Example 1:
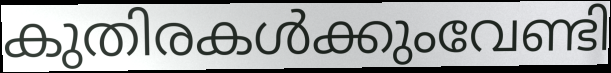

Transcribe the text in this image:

കുതിരകൾക്കുംവേണ്ടി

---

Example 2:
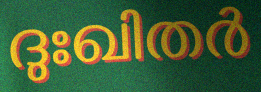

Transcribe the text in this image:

ദുഃഖിതർ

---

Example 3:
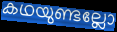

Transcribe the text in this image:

കഥയുണ്ടല്ലോ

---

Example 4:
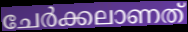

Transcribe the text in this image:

ചേർക്കലാണത്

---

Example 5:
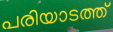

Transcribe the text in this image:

പരിയാടത്ത്